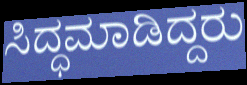
ಸಿದ್ಧಮಾಡಿದ್ದರು